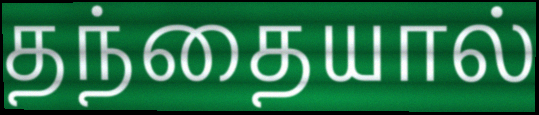
தந்தையால்